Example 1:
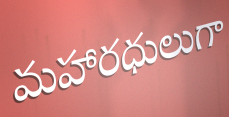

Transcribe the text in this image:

మహారధులుగా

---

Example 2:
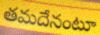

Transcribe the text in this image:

తమదేనంటూ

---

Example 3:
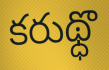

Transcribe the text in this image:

కరుథ్ధొ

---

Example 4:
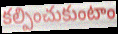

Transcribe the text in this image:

కల్పించుకుంటాం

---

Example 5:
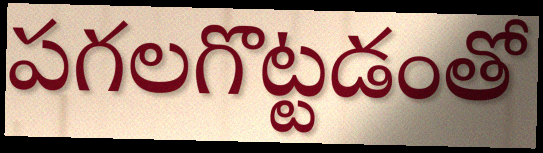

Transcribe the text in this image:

పగలగొట్టడంతో